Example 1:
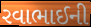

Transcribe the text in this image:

રવાભાઈની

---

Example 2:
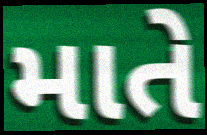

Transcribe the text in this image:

માતે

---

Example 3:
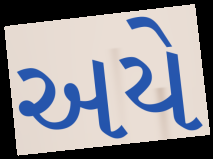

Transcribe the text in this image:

અયે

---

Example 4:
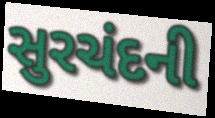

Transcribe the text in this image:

સુરચંદની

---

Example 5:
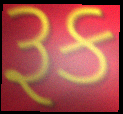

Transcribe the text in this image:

રૂક